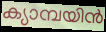
ക്യാമ്പയിൻ